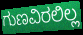
ಗುಣವಿರಲಿಲ್ಲ